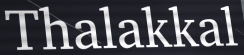
Thalakkal